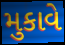
મુકાવે